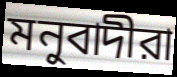
মনুবাদীরা